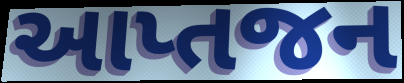
આપ્તજન